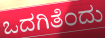
ಒದಗಿತೆಂದು